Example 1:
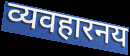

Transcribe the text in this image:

व्यवहारनय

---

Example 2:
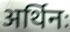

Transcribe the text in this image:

अर्थिनः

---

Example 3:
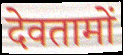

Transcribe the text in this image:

देवतामों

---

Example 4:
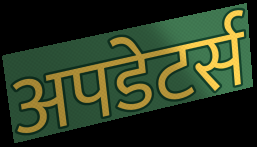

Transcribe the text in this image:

अपडेटर्स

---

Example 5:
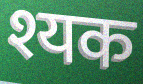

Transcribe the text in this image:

श्यक